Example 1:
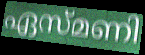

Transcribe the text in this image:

ഏസ്മണി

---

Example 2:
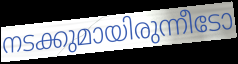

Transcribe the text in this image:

നടക്കുമായിരുന്നീടോ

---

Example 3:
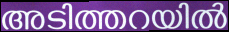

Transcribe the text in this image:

അടിത്തറയിൽ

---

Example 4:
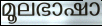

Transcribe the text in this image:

മൂലഭാഷാ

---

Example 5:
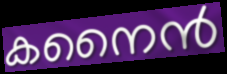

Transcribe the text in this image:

കനൈൻ